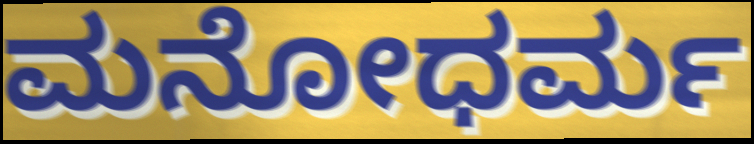
ಮನೋಧರ್ಮ